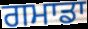
ਗਮਾਡਾ